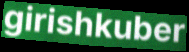
girishkuber